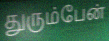
துரும்பேன்